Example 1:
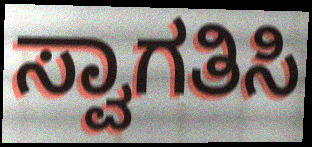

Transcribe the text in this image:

ಸ್ವಾಗತಿಸಿ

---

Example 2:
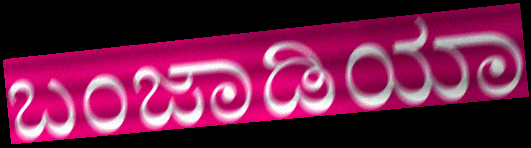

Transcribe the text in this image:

ಬಂಜಾಡಿಯಾ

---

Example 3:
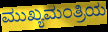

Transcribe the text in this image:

ಮುಖ್ಯಮಂತ್ರಿಯ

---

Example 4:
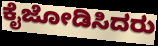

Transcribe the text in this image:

ಕೈಜೋಡಿಸಿದರು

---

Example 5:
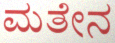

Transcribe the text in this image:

ಮತೇನ